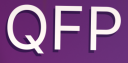
QFP